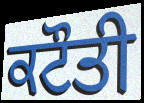
ਕਟੌਤੀ